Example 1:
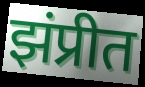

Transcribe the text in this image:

झंप्रीत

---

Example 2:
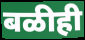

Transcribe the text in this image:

बळीही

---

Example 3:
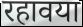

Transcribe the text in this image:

रहावया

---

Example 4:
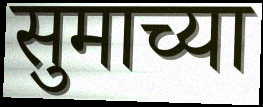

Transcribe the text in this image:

सुमाच्या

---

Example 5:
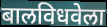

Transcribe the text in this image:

बालविधवेला